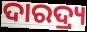
ଦାରଦ୍ର୍ୟ